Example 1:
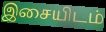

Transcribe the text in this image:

இசையிடம்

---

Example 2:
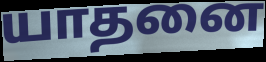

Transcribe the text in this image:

யாதனை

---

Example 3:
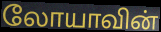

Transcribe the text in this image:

லோயாவின்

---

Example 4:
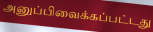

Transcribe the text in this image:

அனுப்பிவைக்கப்பட்டது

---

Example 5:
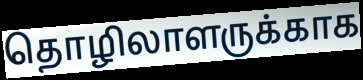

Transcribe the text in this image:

தொழிலாளருக்காக